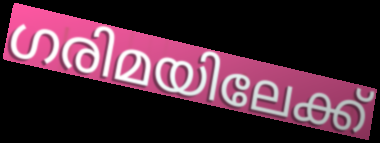
ഗരിമയിലേക്ക്